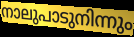
നാലുപാടുനിന്നും